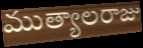
ముత్యాలరాజు